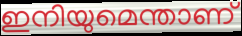
ഇനിയുമെന്താണ്